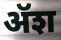
ॲश